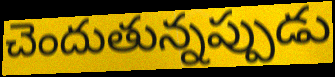
చెందుతున్నప్పుడు